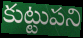
కుట్టుపని